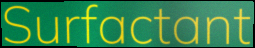
Surfactant